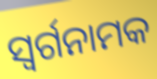
ସ୍ଵର୍ଗନାମକ